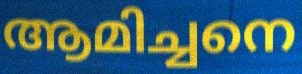
ആമിച്ചനെ